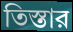
তিস্তার